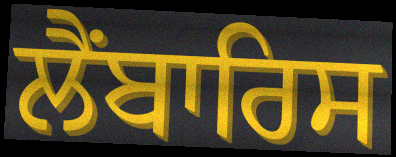
ਲੈਂਬਾਰਿਸ